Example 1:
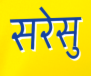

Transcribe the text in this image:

सरेसु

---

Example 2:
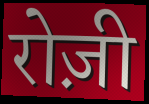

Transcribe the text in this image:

रोज़ी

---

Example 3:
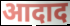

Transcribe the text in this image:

आदाद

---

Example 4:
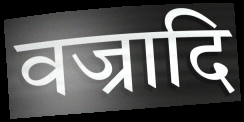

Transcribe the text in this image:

वज्रादि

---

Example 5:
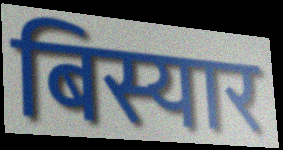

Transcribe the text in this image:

बिस्यार